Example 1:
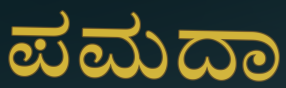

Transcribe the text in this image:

ಪಮದಾ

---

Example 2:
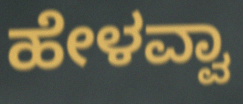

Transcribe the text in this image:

ಹೇಳವ್ವಾ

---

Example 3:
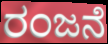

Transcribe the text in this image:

ರಂಜನೆ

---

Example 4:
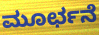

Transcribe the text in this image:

ಮೂರ್ಛನೆ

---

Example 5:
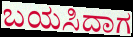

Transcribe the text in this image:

ಬಯಸಿದಾಗ